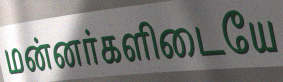
மன்னர்களிடையே